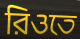
রিওতে